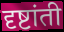
दृष्टांती